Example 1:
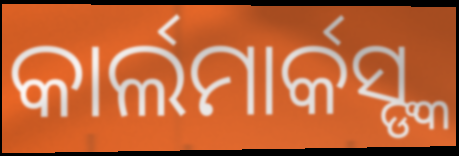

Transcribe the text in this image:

କାର୍ଲମାର୍କସ୍ଙ୍କ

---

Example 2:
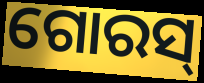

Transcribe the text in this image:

ଗୋରସ୍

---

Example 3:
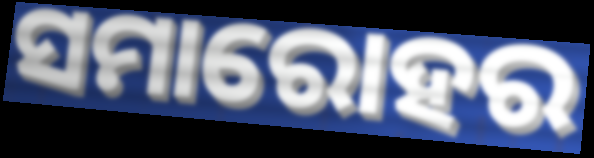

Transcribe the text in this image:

ସମାରୋହର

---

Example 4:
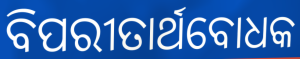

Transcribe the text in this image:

ବିପରୀତାର୍ଥବୋଧକ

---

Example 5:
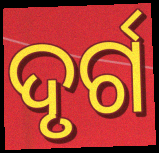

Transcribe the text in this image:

ଦୃର୍ଗ